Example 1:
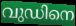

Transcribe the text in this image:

വുഡിനെ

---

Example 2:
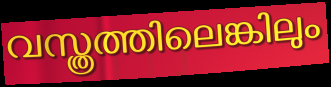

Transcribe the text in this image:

വസ്ത്രത്തിലെങ്കിലും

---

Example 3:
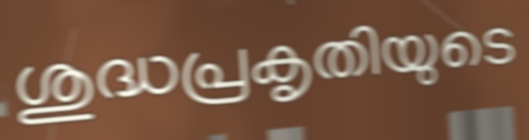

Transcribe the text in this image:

ശുദ്ധപ്രകൃതിയുടെ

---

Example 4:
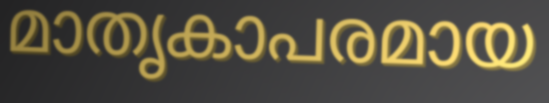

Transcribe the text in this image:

മാതൃകാപരമായ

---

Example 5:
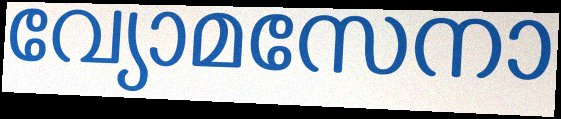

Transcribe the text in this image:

വ്യോമസേനാ